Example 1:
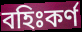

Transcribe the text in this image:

বহিঃকর্ণ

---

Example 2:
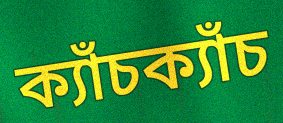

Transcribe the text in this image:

ক্যাঁচক্যাঁচ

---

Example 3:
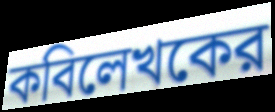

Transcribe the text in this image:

কবিলেখকের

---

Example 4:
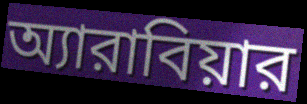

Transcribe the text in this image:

অ্যারাবিয়ার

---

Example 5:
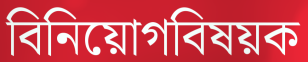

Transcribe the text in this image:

বিনিয়োগবিষয়ক